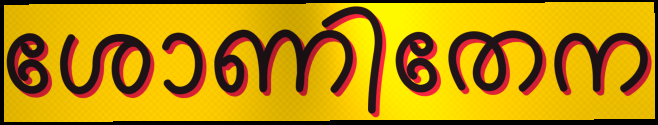
ശോണിതേന